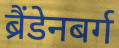
ब्रैंडेनबर्ग